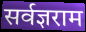
सर्वज्ञराम